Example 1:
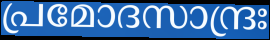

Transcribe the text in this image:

പ്രമോദസാന്ദ്രഃ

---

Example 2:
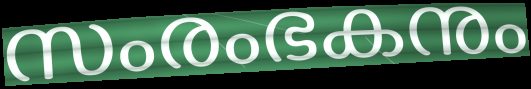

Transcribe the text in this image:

സംരംഭകനും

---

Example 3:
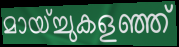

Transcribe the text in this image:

മായ്ച്ചുകളഞ്ഞ്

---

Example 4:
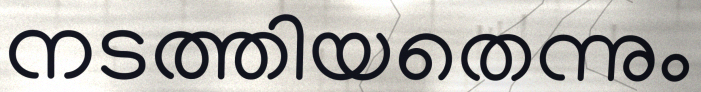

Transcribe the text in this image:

നടത്തിയതെന്നും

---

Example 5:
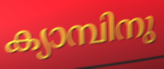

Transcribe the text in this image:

ക്യാമ്പിനു